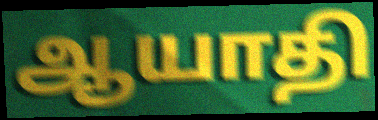
ஆயாதி